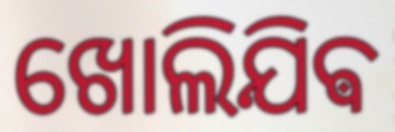
ଖୋଲିଯିଵ